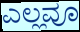
ಎಲ್ಲವೂ